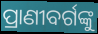
ପ୍ରାଣୀବର୍ଗଙ୍କୁ